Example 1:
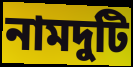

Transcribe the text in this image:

নামদুটি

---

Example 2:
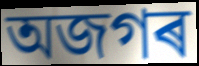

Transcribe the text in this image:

অজগৰ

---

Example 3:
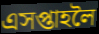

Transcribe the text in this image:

এসপ্তাহলৈ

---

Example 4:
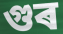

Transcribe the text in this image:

গুৰ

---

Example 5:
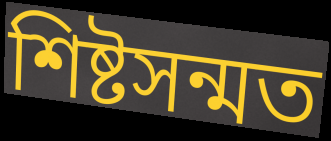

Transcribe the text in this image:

শিষ্টসন্মত